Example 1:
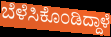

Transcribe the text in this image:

ಬೆಳೆಸಿಕೊಂಡಿದ್ದಾಳೆ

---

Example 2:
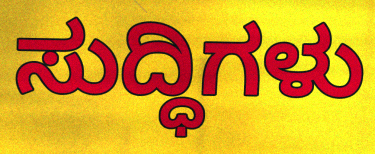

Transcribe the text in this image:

ಸುದ್ಧಿಗಳು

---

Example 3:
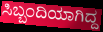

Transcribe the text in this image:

ಸಿಬ್ಬಂದಿಯಾಗಿದ್ದ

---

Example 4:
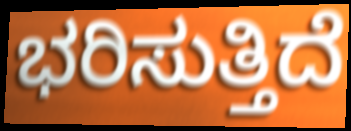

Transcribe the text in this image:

ಭರಿಸುತ್ತಿದೆ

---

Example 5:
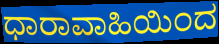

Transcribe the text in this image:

ಧಾರಾವಾಹಿಯಿಂದ